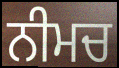
ਨੀਮਚ